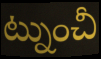
ట్నుంచీ